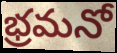
భ్రమనో